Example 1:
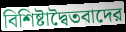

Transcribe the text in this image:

বিশিষ্টাদ্বৈতবাদের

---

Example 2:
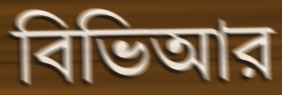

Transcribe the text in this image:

বিভিআর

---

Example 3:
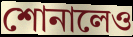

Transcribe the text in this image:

শোনালেও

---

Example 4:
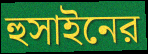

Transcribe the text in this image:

হুসাইনের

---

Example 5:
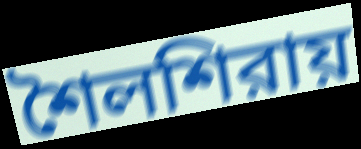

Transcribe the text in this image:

শৈলশিরায়